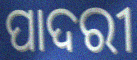
ପାଦରୀ